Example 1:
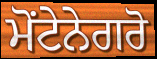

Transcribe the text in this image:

ਮੋਂਟੇਨੇਗਰੋ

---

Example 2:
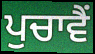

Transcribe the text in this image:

ਪੁਚਾਵੈਂ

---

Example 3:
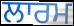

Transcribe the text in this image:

ਲਾਰਮ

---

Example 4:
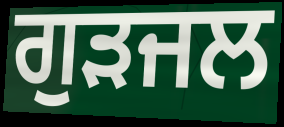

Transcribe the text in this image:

ਗੁੜਜਲ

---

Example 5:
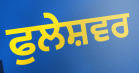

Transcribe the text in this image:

ਫੁਲੇਸ਼ਵਰ